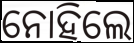
ନୋହିଲେ